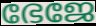
ഭേജേ